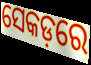
ସେକଡ଼ରେ